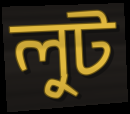
লুট